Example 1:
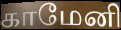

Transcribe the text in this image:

காமேனி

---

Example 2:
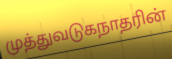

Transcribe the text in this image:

முத்துவடுகநாதரின்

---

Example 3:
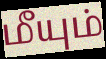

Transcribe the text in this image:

மீயும்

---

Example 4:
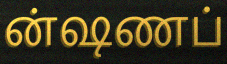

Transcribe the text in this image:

ன்ஷணப்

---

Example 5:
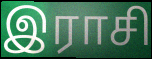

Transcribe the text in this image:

இராசி